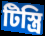
টিস্ত্রি